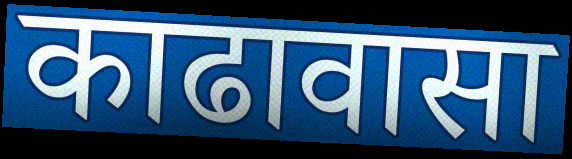
काढावासा